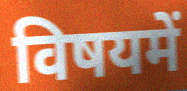
विषयमें